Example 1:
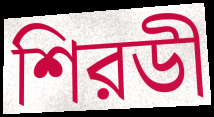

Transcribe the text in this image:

শিরডী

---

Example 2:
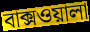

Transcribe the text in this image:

বাক্সওয়ালা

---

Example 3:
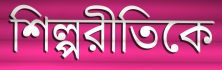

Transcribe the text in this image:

শিল্পরীতিকে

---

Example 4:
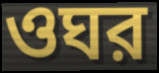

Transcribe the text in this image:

ওঘর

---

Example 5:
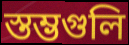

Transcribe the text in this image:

স্তম্ভগুলি